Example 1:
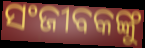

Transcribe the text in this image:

ସଂଜୀବକଙ୍କୁ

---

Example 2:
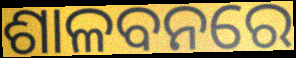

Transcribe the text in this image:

ଶାଳବନରେ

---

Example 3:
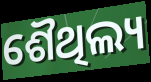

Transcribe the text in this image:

ଶୈଥିଲ୍ୟ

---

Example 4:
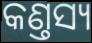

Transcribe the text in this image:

କଣ୍ତସ୍ୟ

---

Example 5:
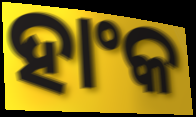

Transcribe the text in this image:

ହାଂକ